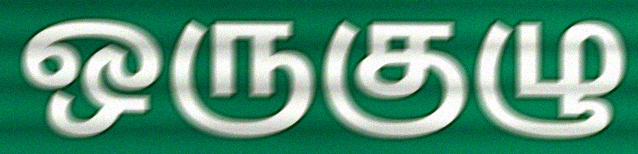
ஒருகுழு